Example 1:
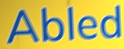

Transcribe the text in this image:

Abled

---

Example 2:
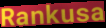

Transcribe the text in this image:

Rankusa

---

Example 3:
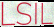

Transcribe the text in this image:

LSIL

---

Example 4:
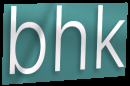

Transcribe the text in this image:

bhk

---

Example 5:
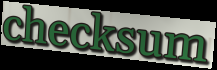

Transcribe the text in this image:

checksum